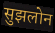
सुझलोन